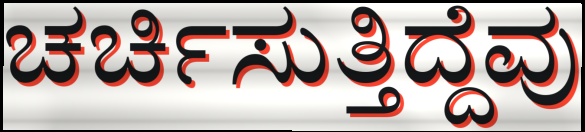
ಚರ್ಚಿಸುತ್ತಿದ್ದೆವು